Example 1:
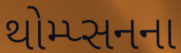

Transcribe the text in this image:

થોમ્પ્સનના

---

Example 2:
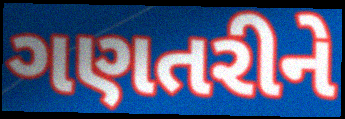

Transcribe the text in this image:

ગણતરીને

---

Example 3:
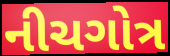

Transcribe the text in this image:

નીચગોત્ર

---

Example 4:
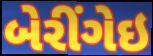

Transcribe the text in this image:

બેરીંગેઇ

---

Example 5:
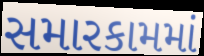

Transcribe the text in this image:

સમારકામમાં